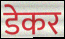
डेकर